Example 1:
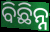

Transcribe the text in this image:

ବିଛିନ୍ନ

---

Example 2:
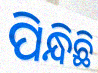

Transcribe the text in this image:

ପିନ୍ଧିଛି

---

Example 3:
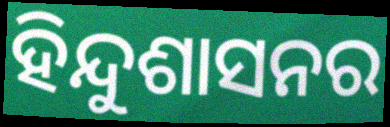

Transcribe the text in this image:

ହିନ୍ଦୁଶାସନର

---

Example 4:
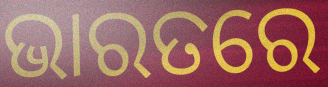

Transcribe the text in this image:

ଭାରତରେ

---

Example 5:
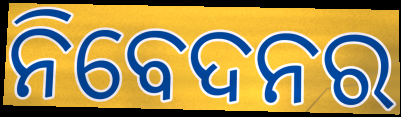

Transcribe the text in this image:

ନିବେଦନର